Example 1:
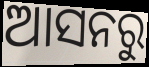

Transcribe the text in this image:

ଆସନରୁ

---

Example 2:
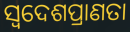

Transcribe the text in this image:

ସ୍ଵଦେଶପ୍ରାଣତା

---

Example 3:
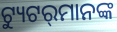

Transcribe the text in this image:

ଟ୍ୟୁଟର୍‍ମାନଙ୍କ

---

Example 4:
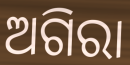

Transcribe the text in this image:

ଅଗିରା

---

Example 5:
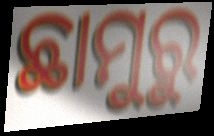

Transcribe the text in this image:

ଛାମୁରୁ